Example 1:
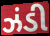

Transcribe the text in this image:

ઝંડી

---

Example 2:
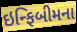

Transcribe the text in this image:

ઇન્ફિબીમના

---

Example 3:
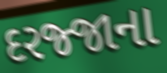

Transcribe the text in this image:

દરજ્જાના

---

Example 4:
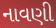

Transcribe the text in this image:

નાવણી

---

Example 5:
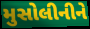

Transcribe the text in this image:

મુસોલીનીને